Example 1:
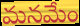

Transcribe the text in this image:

మనమేం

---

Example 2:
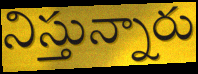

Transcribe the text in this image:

నిస్తున్నారు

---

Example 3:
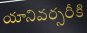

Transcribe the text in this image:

యానివర్సరీకి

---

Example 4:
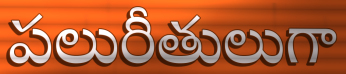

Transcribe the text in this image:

పలురీతులుగా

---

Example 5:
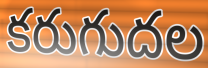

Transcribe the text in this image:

కరుగుదల